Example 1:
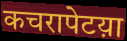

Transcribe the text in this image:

कचरापेटय़ा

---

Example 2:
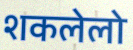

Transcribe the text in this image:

शकलेलो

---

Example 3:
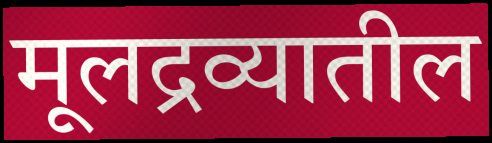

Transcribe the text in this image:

मूलद्रव्यातील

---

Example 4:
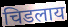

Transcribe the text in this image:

चिडलाय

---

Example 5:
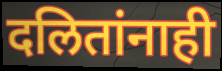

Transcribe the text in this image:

दलितांनाही